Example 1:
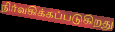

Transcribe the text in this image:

நிர்வகிக்கப்படுகிறது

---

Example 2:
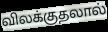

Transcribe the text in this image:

விலக்குதலால்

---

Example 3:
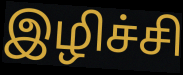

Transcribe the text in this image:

இழிச்சி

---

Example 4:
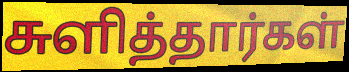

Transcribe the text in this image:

சுளித்தார்கள்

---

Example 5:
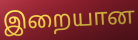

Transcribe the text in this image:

இறையான